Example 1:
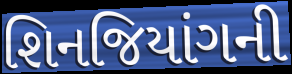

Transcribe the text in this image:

શિનજિયાંગની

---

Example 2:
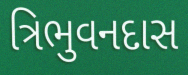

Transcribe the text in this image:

ત્રિભુવનદાસ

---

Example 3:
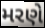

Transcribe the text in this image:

મરણે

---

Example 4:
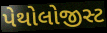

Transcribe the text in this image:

પેથોલોજીસ્ટ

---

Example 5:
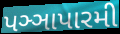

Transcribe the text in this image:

પઞ્ઞાપારમી